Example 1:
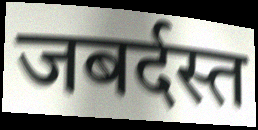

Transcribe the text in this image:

जबर्दस्त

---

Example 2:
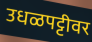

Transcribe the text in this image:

उधळपट्टीवर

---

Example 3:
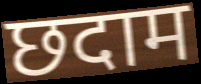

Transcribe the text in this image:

छदाम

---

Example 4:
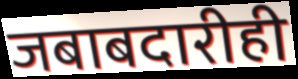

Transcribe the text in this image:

जबाबदारीही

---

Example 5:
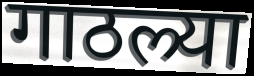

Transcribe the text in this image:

गाठल्या